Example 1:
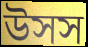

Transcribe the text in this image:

উসস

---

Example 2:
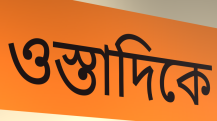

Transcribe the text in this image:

ওস্তাদিকে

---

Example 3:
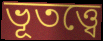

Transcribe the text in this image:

ভূতত্ত্বে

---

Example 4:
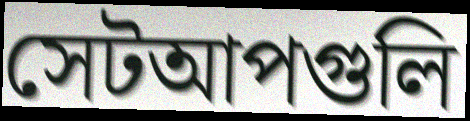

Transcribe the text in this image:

সেটআপগুলি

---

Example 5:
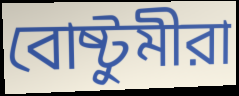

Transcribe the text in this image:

বোষ্টুমীরা